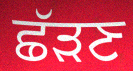
ਛੱੜਣ